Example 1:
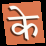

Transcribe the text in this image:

के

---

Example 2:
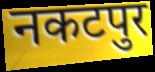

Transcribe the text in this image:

नकटपुर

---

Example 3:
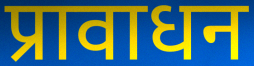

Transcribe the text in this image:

प्रावाधन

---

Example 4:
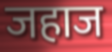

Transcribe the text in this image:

जहाज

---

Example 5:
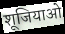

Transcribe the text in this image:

शूजियाओ